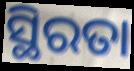
ସ୍ଥିରତା